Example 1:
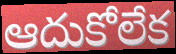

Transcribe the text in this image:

ఆదుకోలేక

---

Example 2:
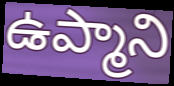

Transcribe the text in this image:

ఉప్మాని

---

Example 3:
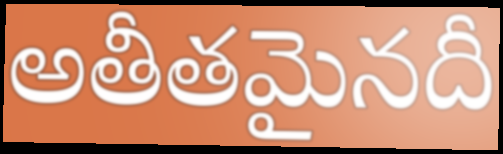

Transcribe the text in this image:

అతీతమైనదీ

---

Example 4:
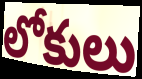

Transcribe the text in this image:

లోకులు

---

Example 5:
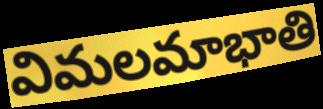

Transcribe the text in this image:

విమలమాభాతి